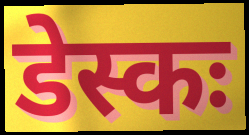
डेस्कः